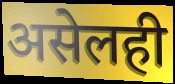
असेलही